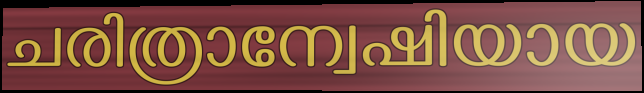
ചരിത്രാന്വേഷിയായ